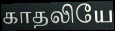
காதலியே